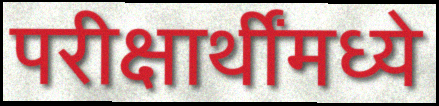
परीक्षार्थींमध्ये